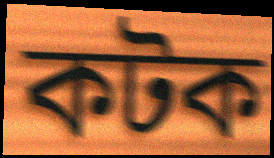
কটক